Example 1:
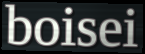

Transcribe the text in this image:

boisei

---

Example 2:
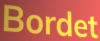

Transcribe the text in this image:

Bordet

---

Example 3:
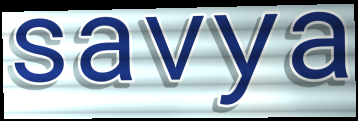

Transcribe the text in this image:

savya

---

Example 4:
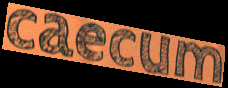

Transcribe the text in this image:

caecum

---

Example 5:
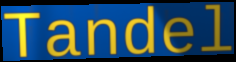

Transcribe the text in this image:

Tandel